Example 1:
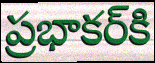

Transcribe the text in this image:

ప్రభాకర్‌కి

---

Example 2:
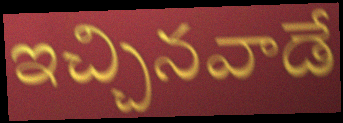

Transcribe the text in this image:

ఇచ్చినవాడే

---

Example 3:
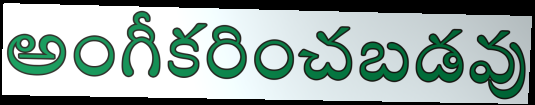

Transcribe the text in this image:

అంగీకరించబడవు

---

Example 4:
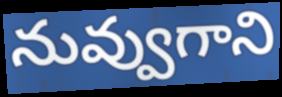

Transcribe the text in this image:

నువ్వుగాని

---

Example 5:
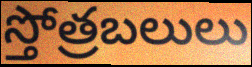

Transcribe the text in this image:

స్తోత్రబలులు